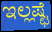
ಇಲ್ಲಷ್ಟೆ